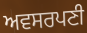
ਅਵਸਰਪਣੀ